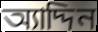
অ্যাদ্দিন